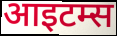
आइटम्स